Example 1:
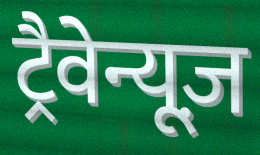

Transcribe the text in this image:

ट्रैवेन्यूज़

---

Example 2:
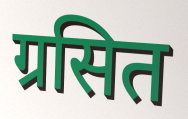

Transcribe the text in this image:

ग्रसित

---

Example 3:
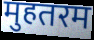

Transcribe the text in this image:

मुहतरम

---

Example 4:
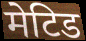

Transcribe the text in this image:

मेटिड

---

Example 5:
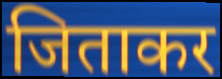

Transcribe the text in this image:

जिताकर